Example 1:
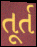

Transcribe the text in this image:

તૂર્ત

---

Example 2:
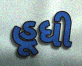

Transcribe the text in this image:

હૂધી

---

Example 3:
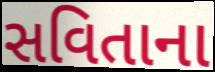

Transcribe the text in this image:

સવિતાના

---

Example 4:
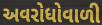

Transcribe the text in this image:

અવરોધોવાળી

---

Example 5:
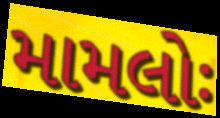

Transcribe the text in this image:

મામલોઃ